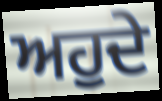
ਅਹੁਦੇ